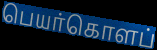
பெயர்கொளப்